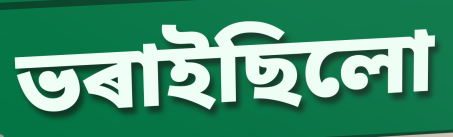
ভৰাইছিলো